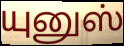
யுனுஸ்